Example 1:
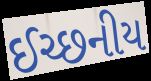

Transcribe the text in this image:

ઈચ્છનીય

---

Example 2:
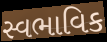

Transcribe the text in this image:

સ્વભાવિક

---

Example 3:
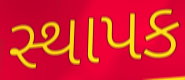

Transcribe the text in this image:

સ્થાપક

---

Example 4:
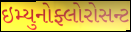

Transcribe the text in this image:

ઇમ્યુનોફ્લોરોસન્ટ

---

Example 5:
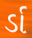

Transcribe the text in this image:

ર્ડા